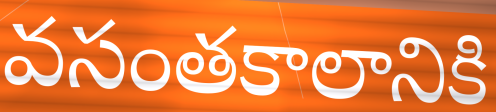
వసంతకాలానికి